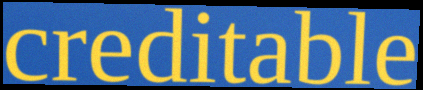
creditable